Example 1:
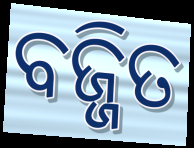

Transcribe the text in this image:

ବଜ୍ଜିତ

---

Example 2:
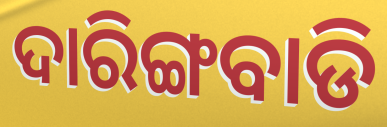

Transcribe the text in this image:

ଦାରିଙ୍ଗବାଡି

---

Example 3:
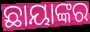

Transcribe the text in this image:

ଛାୟାଙ୍କର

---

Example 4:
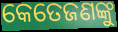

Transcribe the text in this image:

କେତେଜଣଙ୍କୁ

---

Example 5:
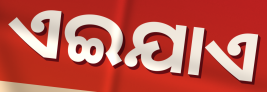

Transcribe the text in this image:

ଏଇଯାଏ